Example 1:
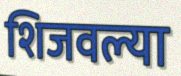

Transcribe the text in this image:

शिजवल्या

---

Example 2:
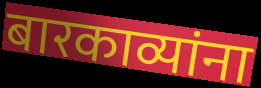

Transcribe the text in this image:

बारकाव्यांना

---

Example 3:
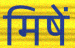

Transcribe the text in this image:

मिषें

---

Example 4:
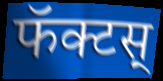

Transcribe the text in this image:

फॅक्टस्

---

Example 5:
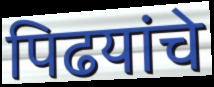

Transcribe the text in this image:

पिढयांचे